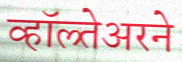
व्हॉल्तेअरने